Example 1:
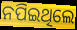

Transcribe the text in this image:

ନପିଇଥିଲେ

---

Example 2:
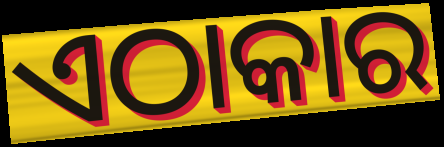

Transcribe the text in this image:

ଏଠାକାର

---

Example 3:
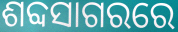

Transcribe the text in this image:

ଶବ୍ଦସାଗରରେ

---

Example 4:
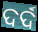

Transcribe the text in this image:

ଦର୍ଦ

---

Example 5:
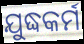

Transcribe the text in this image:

ଯୁଦ୍ଧକର୍ମ